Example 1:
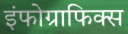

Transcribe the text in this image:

इंफोग्राफिक्स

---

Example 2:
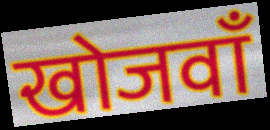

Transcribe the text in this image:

खोजवाँ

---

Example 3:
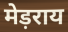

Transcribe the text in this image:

मेड़राय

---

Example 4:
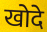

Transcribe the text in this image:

खोदे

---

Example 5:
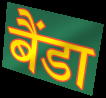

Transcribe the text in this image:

बैंडा